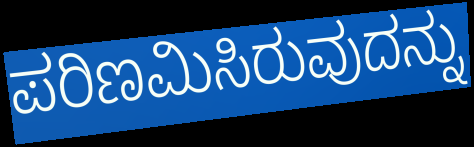
ಪರಿಣಮಿಸಿರುವುದನ್ನು